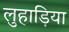
लुहाड़िया